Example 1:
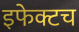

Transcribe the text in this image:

इफेक्टच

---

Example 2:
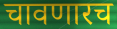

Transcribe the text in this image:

चावणारच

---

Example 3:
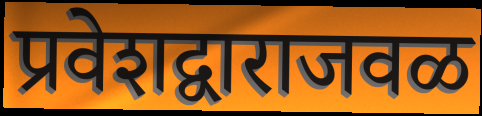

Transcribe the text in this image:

प्रवेशद्वाराजवळ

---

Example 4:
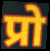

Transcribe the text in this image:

प्रो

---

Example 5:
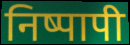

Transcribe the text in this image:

निष्पापी